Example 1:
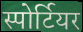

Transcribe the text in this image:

स्पोर्टियर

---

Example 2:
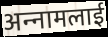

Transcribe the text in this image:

अन्नामलाई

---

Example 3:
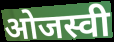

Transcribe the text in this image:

ओजस्वी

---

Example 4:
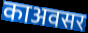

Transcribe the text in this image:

काअवसर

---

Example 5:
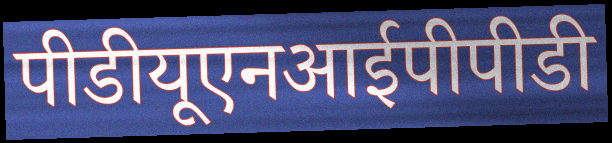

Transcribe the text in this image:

पीडीयूएनआईपीपीडी